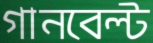
গানবেল্ট